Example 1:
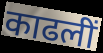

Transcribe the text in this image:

काढलीं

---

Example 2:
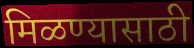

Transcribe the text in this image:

मिळण्यासाठी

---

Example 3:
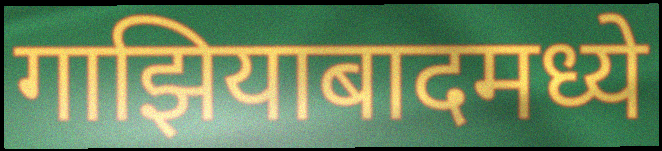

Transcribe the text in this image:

गाझियाबादमध्ये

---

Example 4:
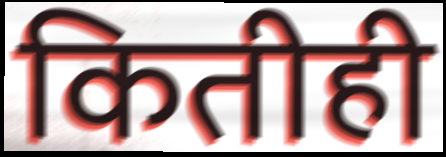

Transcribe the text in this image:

कितीही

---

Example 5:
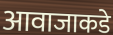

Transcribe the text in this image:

आवाजाकडे